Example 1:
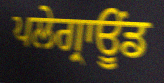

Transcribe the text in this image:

ਪਲੇਗ੍ਰਾਊਂਡ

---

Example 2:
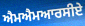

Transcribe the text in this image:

ਐਮਐਮਆਰਸੀਏ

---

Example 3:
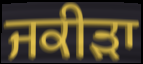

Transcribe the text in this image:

ਜਕੀੜਾ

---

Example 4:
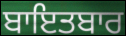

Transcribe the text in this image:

ਬਾਇਤਬਾਰ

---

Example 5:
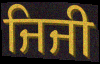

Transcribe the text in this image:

ਜਿਜੀ